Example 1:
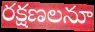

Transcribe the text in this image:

రక్షణలనూ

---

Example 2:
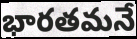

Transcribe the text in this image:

భారతమనే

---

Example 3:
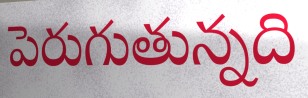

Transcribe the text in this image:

పెరుగుతున్నది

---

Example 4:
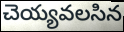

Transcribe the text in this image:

చెయ్యవలసిన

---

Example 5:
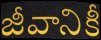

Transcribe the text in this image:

జీవానికీ